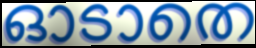
ഓടാതെ